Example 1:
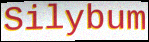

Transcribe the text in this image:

Silybum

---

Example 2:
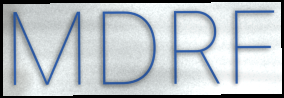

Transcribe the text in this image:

MDRF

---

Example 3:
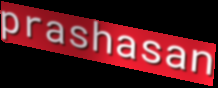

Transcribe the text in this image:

prashasan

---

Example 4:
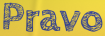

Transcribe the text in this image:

Pravo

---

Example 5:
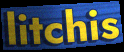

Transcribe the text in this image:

litchis